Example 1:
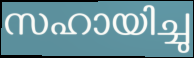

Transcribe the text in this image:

സഹായിച്ചു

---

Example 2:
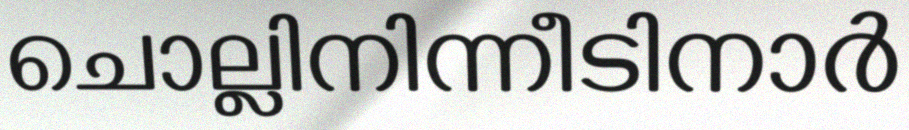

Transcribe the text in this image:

ചൊല്ലിനിന്നീടിനാർ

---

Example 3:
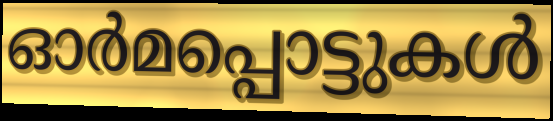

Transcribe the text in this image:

ഓർമപ്പൊട്ടുകൾ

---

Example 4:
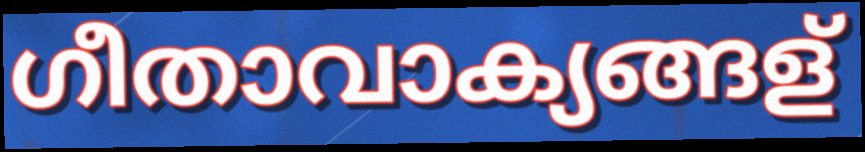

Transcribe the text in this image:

ഗീതാവാക്യങ്ങള്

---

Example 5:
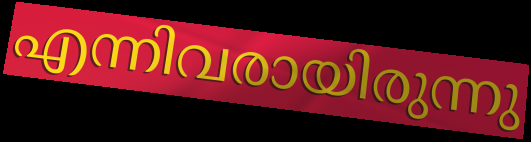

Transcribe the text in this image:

എന്നിവരായിരുന്നു